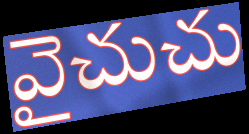
వైచుచు